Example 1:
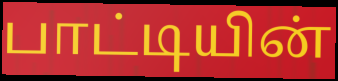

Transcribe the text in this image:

பாட்டியின்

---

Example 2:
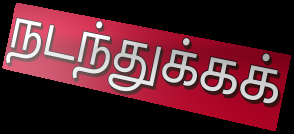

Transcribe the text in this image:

நடந்துக்கக்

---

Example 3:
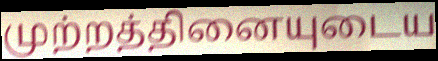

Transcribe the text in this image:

முற்றத்தினையுடைய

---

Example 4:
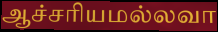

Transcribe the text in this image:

ஆச்சரியமல்லவா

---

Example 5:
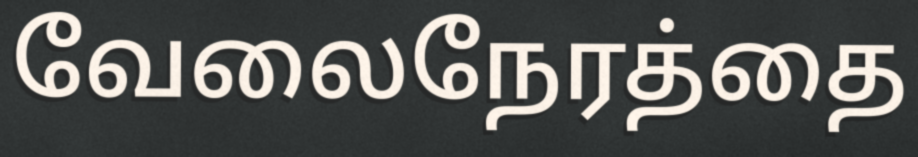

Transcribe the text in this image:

வேலைநேரத்தை